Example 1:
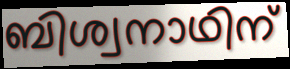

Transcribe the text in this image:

ബിശ്വനാഥിന്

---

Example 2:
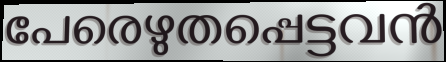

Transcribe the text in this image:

പേരെഴുതപ്പെട്ടവൻ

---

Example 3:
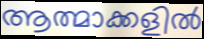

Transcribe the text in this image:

ആത്മാക്കളിൽ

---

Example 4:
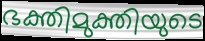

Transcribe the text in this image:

ഭക്തിമുക്തിയുടെ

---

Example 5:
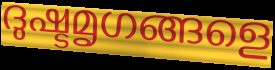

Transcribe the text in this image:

ദുഷ്ടമൃഗങ്ങളെ